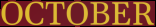
OCTOBER